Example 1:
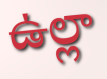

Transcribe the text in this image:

ఉల్లా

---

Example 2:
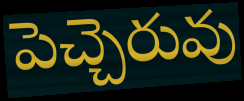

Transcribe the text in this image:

పెచ్చెరువు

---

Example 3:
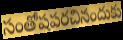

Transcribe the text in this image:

సంతోషపరచినందుకు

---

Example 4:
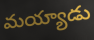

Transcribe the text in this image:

మయ్యాడు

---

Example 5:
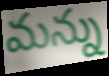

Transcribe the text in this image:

మన్ను